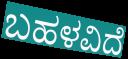
ಬಹಳವಿದೆ